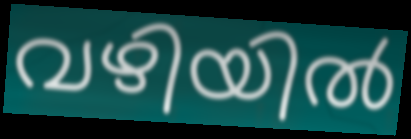
വഴിയിൽ